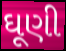
ઘૂણી